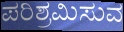
ಪರಿಶ್ರಮಿಸುವ